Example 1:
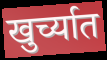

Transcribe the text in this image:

खुर्च्यात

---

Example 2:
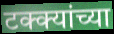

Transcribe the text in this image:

टक्क्यांच्या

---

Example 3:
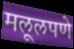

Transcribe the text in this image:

मलूलपणे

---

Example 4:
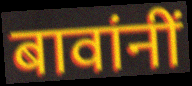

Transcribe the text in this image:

बावांनीं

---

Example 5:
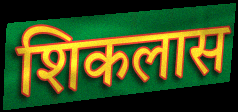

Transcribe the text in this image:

शिकलास